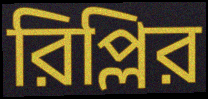
রিপ্লির